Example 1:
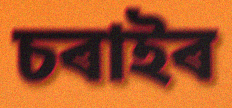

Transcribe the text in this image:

চৰাইৰ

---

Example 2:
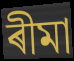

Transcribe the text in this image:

ৰীমা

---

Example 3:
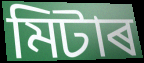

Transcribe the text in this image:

মিটাৰ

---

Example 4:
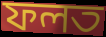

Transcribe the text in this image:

ফলত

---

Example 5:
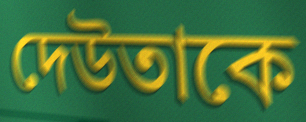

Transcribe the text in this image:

দেউতাকে